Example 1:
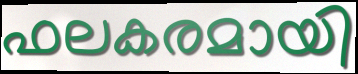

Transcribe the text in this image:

ഫലകരമായി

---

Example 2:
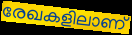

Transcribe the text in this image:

രേഖകളിലാണ്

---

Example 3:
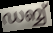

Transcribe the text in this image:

ഡബ്ബ്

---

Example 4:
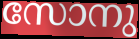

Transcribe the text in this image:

സോനു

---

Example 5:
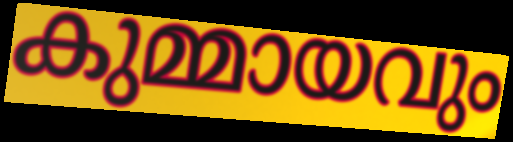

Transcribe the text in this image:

കുമ്മായവും